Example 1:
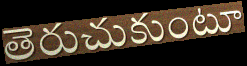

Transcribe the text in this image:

తెరుచుకుంటూ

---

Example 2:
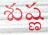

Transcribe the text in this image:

శుష్ణ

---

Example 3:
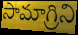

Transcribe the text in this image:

సామాగ్రిని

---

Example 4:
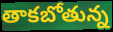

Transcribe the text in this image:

తాకబోతున్న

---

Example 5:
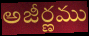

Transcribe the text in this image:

అజీర్ణము